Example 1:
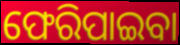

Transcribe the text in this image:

ଫେରିପାଇବା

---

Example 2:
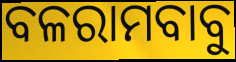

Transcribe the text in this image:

ବଳରାମବାବୁ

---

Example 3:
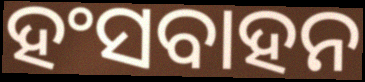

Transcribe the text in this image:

ହଂସବାହନ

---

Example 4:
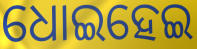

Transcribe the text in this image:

ଧୋଇହେଇ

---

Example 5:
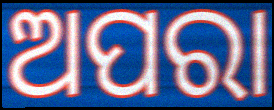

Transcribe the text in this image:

ଅପରା